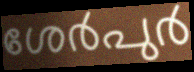
ശേർപുർ